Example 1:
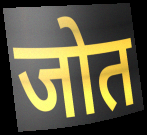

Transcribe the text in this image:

जोत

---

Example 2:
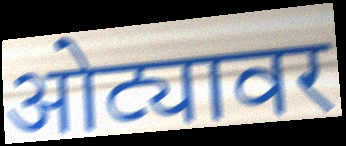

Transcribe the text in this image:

ओट्यावर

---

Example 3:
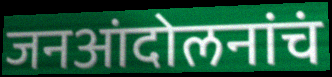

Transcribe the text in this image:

जनआंदोलनांचं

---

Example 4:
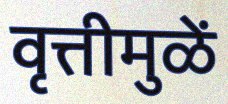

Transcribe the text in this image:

वृत्तीमुळें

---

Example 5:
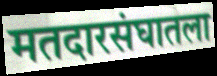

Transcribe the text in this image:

मतदारसंघातला